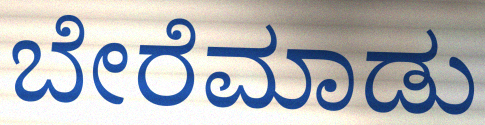
ಬೇರೆಮಾಡು